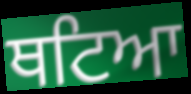
ਥਟਿਆ